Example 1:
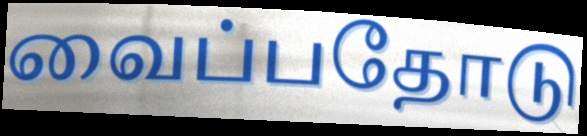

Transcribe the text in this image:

வைப்பதோடு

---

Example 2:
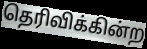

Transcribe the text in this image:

தெரிவிக்கின்ற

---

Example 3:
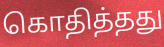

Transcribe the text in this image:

கொதித்தது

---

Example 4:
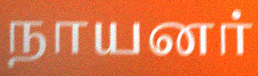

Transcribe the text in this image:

நாயனர்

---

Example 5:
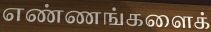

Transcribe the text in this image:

எண்ணங்களைக்